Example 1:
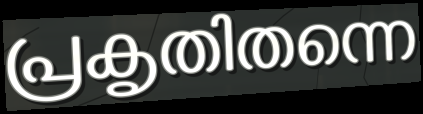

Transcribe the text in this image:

പ്രകൃതിതന്നെ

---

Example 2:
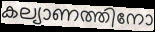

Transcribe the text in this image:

കല്യാണത്തിനോ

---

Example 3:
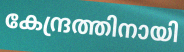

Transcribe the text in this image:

കേന്ദ്രത്തിനായി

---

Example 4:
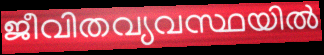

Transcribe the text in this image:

ജീവിതവ്യവസ്ഥയിൽ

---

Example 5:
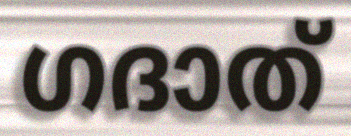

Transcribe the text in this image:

ഗദാത്